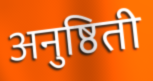
अनुष्ठिती